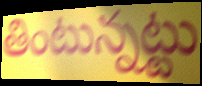
తింటున్నట్టు